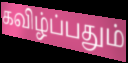
கவிழ்ப்பதும்